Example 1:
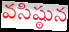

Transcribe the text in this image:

వసిష్ఠున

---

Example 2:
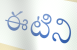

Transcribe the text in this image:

ఈటిని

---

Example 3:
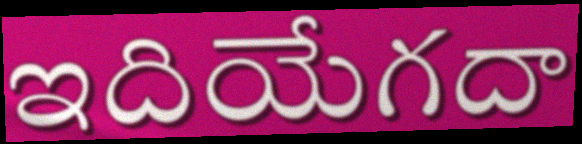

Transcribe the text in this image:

ఇదియేగదా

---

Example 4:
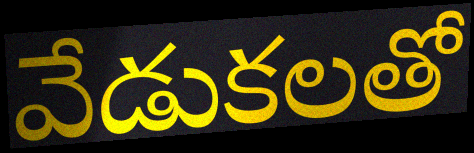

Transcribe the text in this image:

వేడుకలతో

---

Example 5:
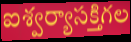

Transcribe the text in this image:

ఐశ్వర్యాసక్తిగల